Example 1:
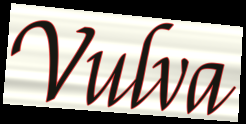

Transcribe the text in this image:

Vulva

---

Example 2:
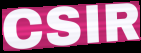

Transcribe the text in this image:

CSIR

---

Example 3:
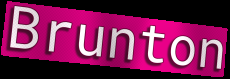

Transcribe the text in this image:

Brunton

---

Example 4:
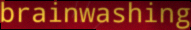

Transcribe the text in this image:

brainwashing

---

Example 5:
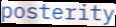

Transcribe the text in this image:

posterity